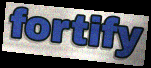
fortify